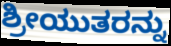
ಶ್ರೀಯುತರನ್ನು